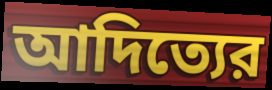
আদিত্যের